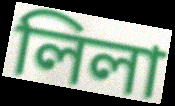
লিলা